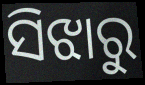
ସିଝାରୁ